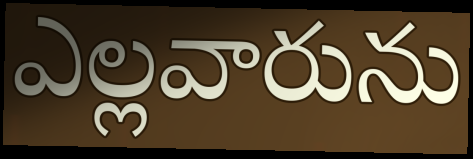
ఎల్లవారును